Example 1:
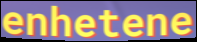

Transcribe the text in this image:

enhetene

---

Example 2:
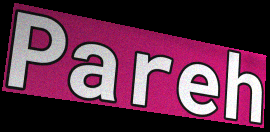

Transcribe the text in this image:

Pareh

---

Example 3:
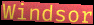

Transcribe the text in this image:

Windsor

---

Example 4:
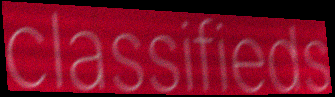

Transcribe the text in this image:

classifieds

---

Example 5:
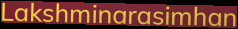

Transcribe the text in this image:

Lakshminarasimhan